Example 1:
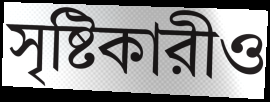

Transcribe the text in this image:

সৃষ্টিকারীও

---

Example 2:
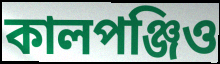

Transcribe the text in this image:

কালপঞ্জিও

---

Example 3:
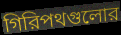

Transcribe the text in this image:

গিরিপথগুলোর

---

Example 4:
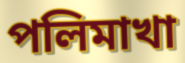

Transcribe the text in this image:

পলিমাখা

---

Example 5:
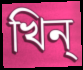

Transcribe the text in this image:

খিন্